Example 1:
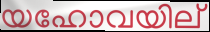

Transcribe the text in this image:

യഹോവയില്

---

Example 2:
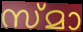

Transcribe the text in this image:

സ്മാ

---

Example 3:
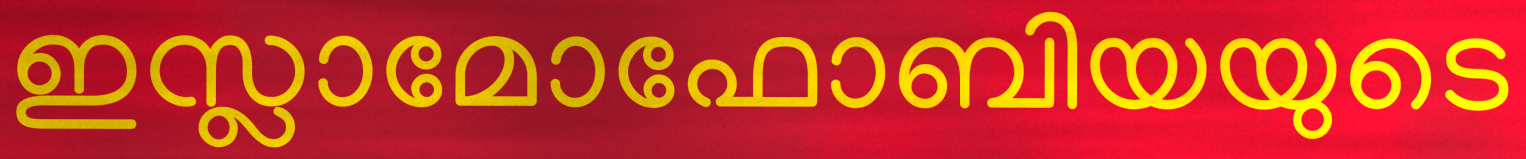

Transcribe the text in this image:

ഇസ്ലാമോഫോബിയയുടെ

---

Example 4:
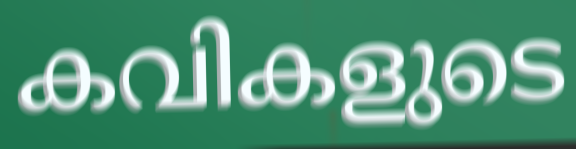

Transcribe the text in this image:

കവികളുടെ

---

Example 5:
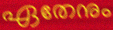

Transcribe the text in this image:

ഏതേനും